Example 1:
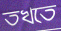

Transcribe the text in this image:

তখতে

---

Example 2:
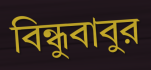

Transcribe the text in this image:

বিন্ধুবাবুর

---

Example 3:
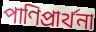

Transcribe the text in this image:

পাণিপ্রার্থনা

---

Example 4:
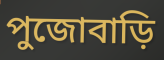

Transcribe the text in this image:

পুজোবাড়ি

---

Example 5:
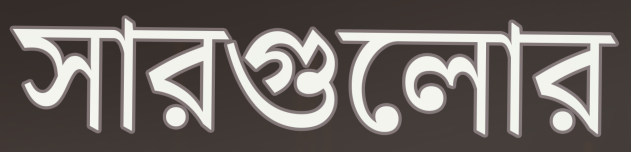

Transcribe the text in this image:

সারগুলোর